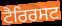
ਟੈਰਿਰਸਟ